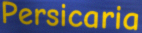
Persicaria